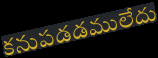
కనుపడడములేదు